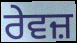
ਰੇਵਜ਼